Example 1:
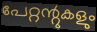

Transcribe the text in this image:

പേറ്റന്റുകളും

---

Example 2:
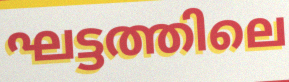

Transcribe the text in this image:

ഘട്ടത്തിലെ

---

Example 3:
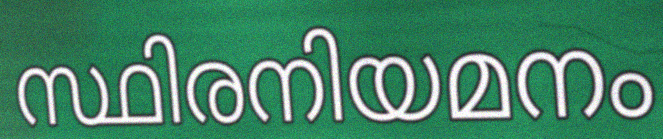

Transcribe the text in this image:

സ്ഥിരനിയമനം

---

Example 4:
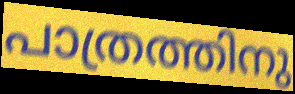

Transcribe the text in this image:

പാത്രത്തിനു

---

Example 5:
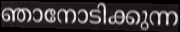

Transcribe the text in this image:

ഞാനോടിക്കുന്ന